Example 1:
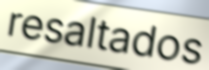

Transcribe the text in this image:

resaltados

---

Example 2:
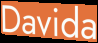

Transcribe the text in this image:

Davida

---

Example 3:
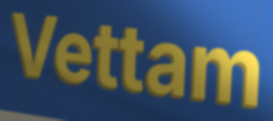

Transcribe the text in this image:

Vettam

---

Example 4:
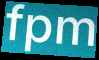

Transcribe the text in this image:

fpm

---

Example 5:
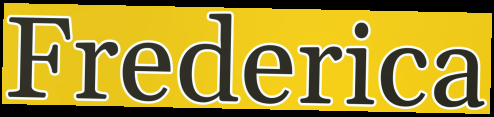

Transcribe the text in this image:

Frederica